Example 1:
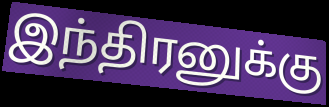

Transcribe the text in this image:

இந்திரனுக்கு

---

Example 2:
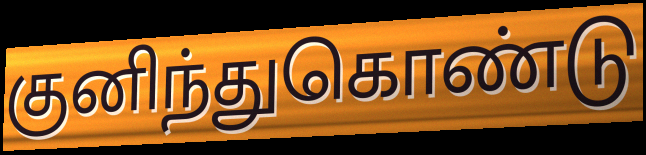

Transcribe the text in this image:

குனிந்துகொண்டு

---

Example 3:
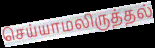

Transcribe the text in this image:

செய்யாமலிருத்தல்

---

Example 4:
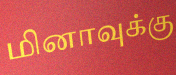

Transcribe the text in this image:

மினாவுக்கு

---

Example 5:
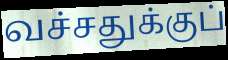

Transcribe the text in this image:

வச்சதுக்குப்